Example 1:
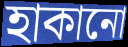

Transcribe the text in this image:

হাকানো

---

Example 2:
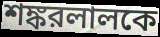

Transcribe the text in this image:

শঙ্করলালকে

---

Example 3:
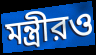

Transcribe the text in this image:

মন্ত্রীরও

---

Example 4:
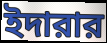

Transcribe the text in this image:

ইদারার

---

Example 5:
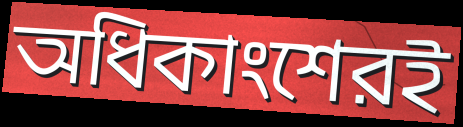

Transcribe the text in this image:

অধিকাংশেরই